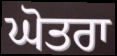
ਘੋਤਰਾ